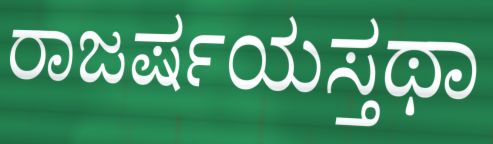
ರಾಜರ್ಷಯಸ್ತಥಾ